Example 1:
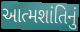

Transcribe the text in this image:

આત્મશાંતિનું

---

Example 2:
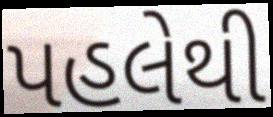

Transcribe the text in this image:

પહલેથી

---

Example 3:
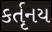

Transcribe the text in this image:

કર્તૃનય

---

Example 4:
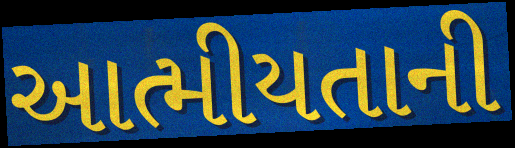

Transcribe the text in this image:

આત્મીયતાની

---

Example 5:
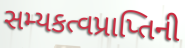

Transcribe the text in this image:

સમ્યકત્વપ્રાપ્તિની